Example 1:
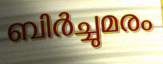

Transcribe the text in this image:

ബിർച്ചുമരം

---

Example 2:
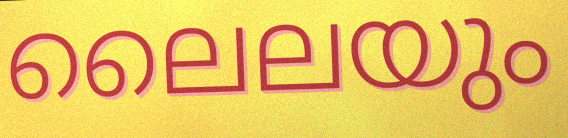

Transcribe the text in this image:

ലൈലയും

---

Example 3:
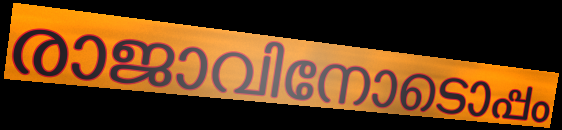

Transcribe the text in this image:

രാജാവിനോടൊപ്പം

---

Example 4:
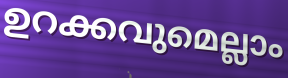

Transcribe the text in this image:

ഉറക്കവുമെല്ലാം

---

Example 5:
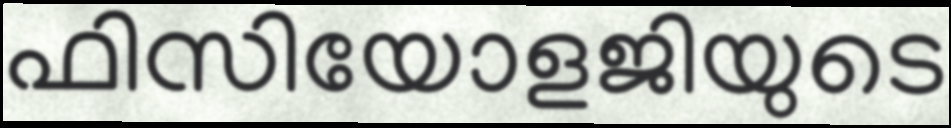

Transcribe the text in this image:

ഫിസിയോളജിയുടെ